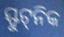
ସ୍ଫୁଟ୍‌ନିକ